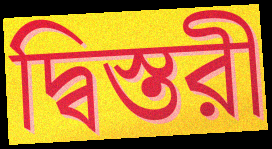
দ্বিস্তরী